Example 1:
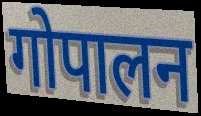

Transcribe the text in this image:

गोपालन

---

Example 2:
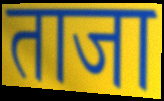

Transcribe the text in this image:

ताजा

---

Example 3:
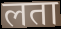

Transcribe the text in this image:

लता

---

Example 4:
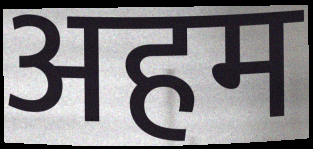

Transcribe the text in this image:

अहम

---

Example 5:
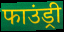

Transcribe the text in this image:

फाउंड्री